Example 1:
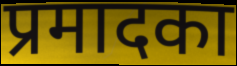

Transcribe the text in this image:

प्रमादका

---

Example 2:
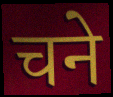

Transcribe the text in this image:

चने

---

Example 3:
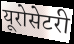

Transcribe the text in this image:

यूरोसेटरी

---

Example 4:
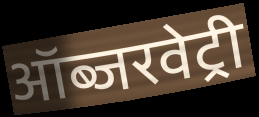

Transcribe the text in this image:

ऑब्जरवेट्री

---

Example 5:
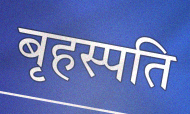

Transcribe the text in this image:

बृहस्‍पति